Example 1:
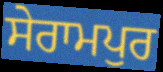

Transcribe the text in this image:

ਸੇਰਾਮਪੁਰ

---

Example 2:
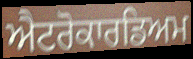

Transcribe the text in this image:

ਐਟਰੋਕਾਰਡਿਅਮ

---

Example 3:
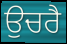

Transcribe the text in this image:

ਉਚਰੈ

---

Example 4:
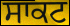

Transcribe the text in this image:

ਸਾਕਟ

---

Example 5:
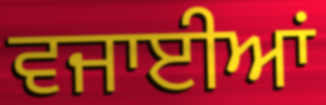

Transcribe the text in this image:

ਵਜਾਈਆਂ